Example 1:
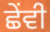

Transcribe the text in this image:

ਛੇੰਵੀ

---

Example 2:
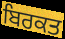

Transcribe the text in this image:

ਬਿਰਕਤ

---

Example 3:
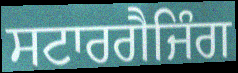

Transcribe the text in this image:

ਸਟਾਰਗੈਜਿੰਗ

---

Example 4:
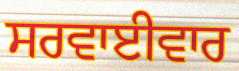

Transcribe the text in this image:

ਸਰਵਾਈਵਾਰ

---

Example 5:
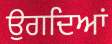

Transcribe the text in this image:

ਉਗਦਿਆਂ